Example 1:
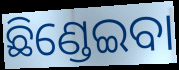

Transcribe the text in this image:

ଛିଣ୍ଡେଇବା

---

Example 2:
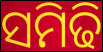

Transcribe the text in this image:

ସମିଢି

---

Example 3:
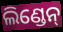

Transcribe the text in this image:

ଲିଣ୍ଡେନ୍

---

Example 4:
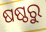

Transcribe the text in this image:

ଷଷ୍ଠରୁ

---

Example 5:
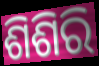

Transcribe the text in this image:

ଶିଶିରି